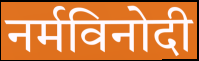
नर्मविनोदी